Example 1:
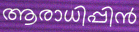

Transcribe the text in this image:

ആരാധിപ്പിൻ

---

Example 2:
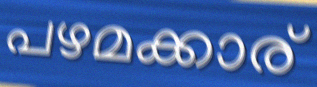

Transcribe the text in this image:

പഴമക്കാര്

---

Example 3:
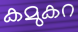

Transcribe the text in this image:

കമുകറ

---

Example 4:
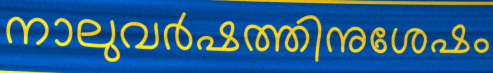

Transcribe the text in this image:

നാലുവർഷത്തിനുശേഷം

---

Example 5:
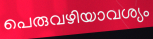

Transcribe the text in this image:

പെരുവഴിയാവശ്യം